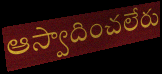
ఆస్వాదించలేరు